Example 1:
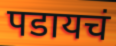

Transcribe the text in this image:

पडायचं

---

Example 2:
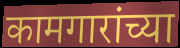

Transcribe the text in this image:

कामगारांच्या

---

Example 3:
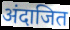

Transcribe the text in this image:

अंदाजित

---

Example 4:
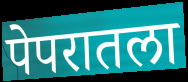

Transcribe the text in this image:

पेपरातला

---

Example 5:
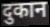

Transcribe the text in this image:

दुकान